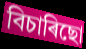
বিচাৰিছো